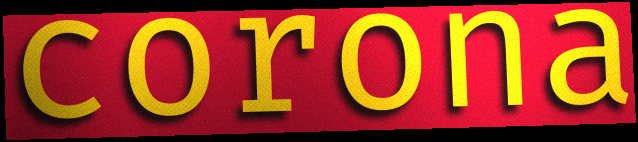
corona